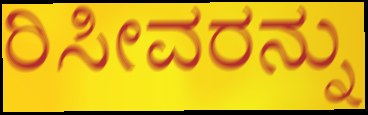
ರಿಸೀವರನ್ನು